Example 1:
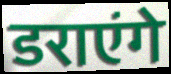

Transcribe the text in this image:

डराएंगे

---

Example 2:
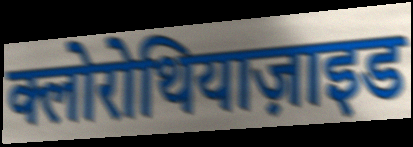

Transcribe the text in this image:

क्लोरोथियाज़ाइड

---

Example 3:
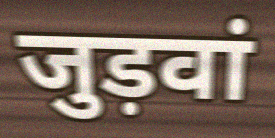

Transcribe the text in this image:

जुड़वां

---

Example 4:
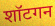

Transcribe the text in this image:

शॉटगन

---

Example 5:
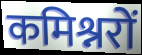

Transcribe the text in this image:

कमिश्नरों